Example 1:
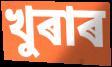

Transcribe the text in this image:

খুৰাৰ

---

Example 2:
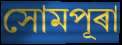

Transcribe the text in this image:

সোমপূৰা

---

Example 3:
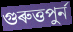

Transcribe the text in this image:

গুৰুত্তপুৰ্ন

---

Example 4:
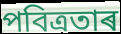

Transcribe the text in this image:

পবিত্ৰতাৰ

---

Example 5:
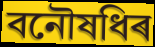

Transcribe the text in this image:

বনৌষধিৰ